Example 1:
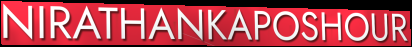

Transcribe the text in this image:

NIRATHANKAPOSHOUR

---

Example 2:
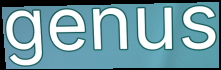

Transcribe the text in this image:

genus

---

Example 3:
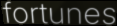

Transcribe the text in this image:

fortunes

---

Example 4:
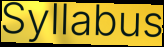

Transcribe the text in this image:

Syllabus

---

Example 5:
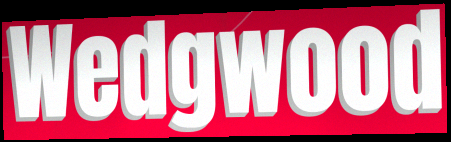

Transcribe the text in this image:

Wedgwood